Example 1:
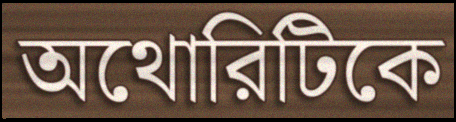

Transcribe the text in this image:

অথোরিটিকে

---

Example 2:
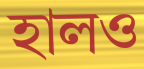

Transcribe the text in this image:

হালও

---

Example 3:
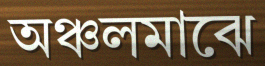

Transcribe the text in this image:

অঞ্চলমাঝে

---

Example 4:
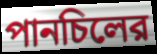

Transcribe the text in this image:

পানচিলের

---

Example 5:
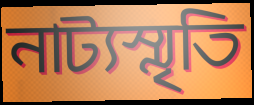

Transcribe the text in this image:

নাট্যস্মৃতি